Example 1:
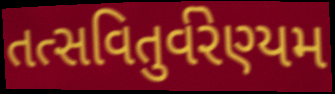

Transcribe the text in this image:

તત્સવિતુર્વરેણ્યમ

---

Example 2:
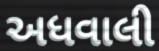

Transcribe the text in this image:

અધવાલી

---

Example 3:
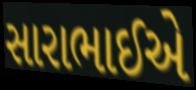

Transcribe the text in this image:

સારાભાઈએ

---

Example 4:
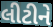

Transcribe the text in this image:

લીટીને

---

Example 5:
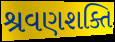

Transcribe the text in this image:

શ્રવણશક્તિ